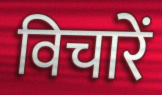
विचारें